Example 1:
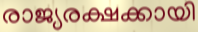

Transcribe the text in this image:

രാജ്യരക്ഷക്കായി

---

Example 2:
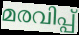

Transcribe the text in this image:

മരവിപ്പ്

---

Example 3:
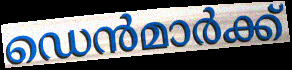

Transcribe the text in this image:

ഡെൻമാർക്ക്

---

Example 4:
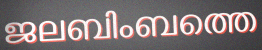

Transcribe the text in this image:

ജലബിംബത്തെ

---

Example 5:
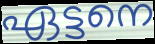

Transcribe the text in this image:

ഏട്ടനെ